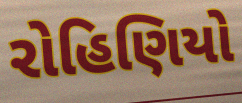
રોહિણિયો